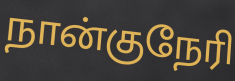
நான்குநேரி